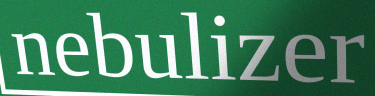
nebulizer